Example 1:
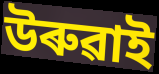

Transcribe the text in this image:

উৰুৱাই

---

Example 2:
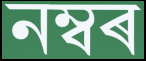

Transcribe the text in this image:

নম্বৰ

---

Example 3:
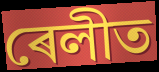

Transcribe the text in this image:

ৰেলীত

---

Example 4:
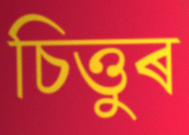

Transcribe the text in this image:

চিত্তুৰ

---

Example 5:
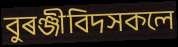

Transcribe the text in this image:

বুৰঞ্জীবিদসকলে